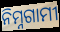
ନିମ୍ନଗାମୀ